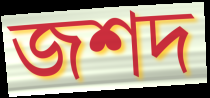
জশদ